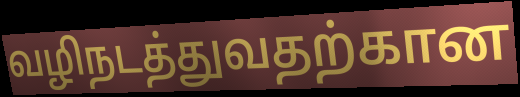
வழிநடத்துவதற்கான